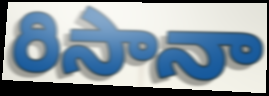
రిసానా